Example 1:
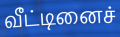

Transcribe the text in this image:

வீட்டினைச்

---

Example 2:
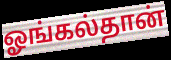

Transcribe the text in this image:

ஓங்கல்தான்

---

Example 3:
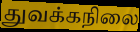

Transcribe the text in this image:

துவக்கநிலை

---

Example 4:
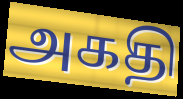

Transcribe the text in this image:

அகதி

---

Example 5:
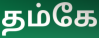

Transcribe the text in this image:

தம்கே